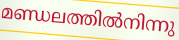
മണ്ഡലത്തിൽനിന്നു